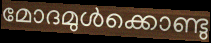
മോദമുൾക്കൊണ്ടു